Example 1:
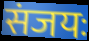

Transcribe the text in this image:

संजयः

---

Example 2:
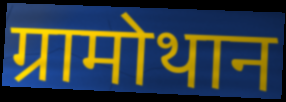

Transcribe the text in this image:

ग्रामोथान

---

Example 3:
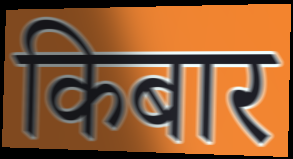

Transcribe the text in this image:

किबार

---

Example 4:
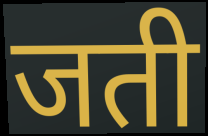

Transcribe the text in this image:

जती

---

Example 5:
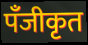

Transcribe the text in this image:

पँजीकृत